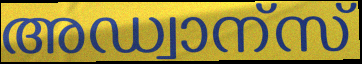
അഡ്വാന്സ്